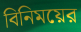
বিনিময়ের